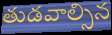
తుడవాల్సిన